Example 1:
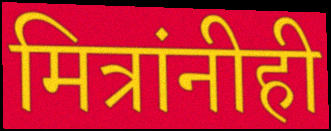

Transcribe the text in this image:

मित्रांनीही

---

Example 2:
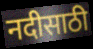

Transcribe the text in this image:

नदीसाठी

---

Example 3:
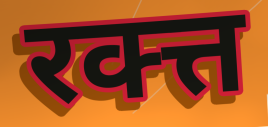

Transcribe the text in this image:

रक्त्त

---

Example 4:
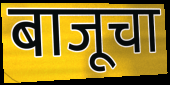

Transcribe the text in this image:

बाजूचा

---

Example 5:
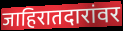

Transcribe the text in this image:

जाहिरातदारांवर